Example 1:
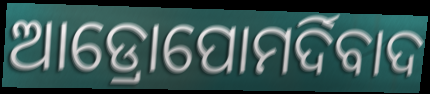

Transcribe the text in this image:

ଆଡ୍ରୋପୋମର୍ଦିବାଦ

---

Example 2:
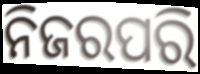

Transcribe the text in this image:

ନିଜରପରି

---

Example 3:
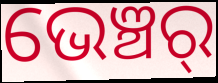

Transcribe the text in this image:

ଭେଞ୍ଚର୍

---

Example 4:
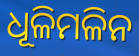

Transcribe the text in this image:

ଧୂଳିମଳିନ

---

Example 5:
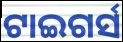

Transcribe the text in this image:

ଟାଇଗର୍ସ